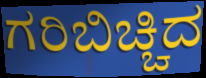
ಗರಿಬಿಚ್ಚಿದ